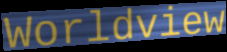
Worldview